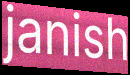
janish